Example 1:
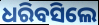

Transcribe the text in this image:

ଧରିବସିଲେ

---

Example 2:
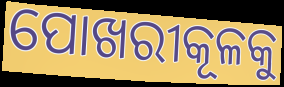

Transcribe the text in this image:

ପୋଖରୀକୂଳକୁ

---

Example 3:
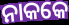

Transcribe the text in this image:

ନାକକେ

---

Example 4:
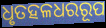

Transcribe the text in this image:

ଧୃତହଳଧରରୂପ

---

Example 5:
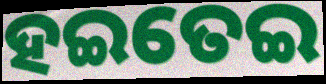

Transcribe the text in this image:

ହଇତେଇ